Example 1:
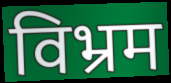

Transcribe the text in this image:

विभ्रम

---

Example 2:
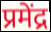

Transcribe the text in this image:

प्रमेंद्र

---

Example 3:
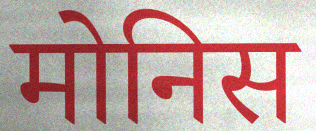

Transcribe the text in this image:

मोनिस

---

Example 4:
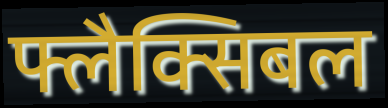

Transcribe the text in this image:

फ्लैक्सिबल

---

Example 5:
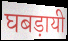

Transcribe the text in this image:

घबड़ायी